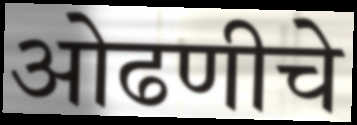
ओढणीचे